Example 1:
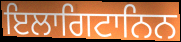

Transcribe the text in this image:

ਇਲਾਗਿਟਾਨਿਨ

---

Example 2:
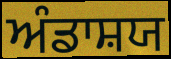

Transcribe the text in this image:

ਅੰਡਾਸ਼ਯ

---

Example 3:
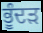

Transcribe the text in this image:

ਭੂੰਦੜ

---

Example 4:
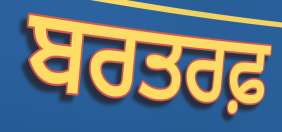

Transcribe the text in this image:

ਬਰਤਰਫ਼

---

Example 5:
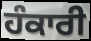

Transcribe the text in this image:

ਹੰਕਾਰੀ